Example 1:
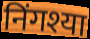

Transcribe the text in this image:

निंगश्या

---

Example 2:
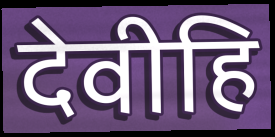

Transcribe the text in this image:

देवीहि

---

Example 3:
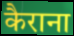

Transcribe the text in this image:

कैराना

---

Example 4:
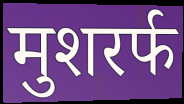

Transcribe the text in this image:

मुशरर्फ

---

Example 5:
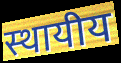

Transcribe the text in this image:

स्थायीय